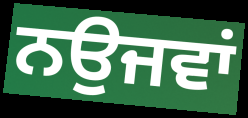
ਨਉਜਵਾਂ